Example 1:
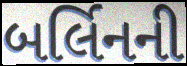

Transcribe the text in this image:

બર્લિનની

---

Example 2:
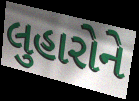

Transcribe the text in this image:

લુહારોને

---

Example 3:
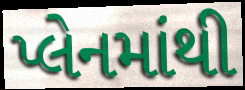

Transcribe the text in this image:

પ્લેનમાંથી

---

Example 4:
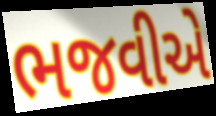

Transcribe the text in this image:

ભજવીએ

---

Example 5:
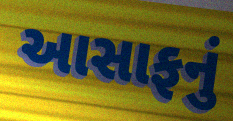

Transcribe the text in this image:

આસાફનું